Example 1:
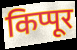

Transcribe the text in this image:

किप्पूर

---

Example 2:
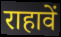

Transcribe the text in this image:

राहावें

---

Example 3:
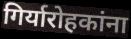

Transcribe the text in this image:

गिर्यारोहकांना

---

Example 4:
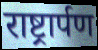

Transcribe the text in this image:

राष्ट्रार्पण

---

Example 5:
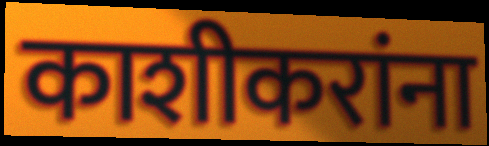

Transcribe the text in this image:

काशीकरांना